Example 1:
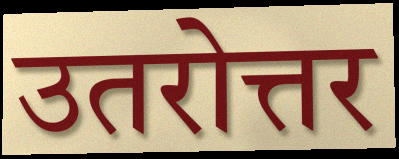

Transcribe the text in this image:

उतरोत्तर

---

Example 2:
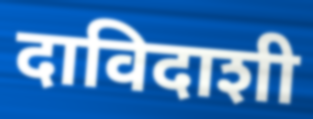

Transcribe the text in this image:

दाविदाशी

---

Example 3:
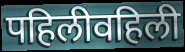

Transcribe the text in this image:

पहिलीवहिली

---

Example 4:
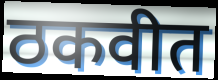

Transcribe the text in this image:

ठकवीत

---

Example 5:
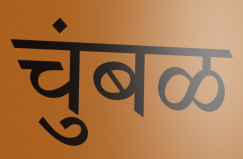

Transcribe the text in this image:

चुंबळ